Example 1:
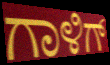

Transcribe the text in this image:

ಗಾಳಿಗ್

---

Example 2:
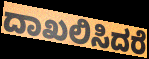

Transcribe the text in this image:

ದಾಖಲಿಸಿದರೆ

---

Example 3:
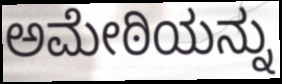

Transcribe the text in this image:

ಅಮೇಠಿಯನ್ನು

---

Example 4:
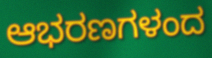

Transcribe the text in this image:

ಆಭರಣಗಳಂದ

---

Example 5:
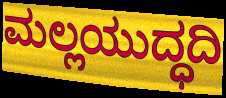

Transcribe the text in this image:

ಮಲ್ಲಯುದ್ಧದಿ